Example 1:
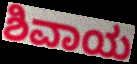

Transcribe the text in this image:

ಶಿವಾಯ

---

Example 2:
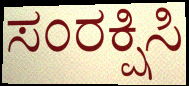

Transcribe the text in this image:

ಸಂರಕ್ಷಿಸಿ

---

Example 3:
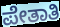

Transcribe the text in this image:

ಪೇತಾತಿ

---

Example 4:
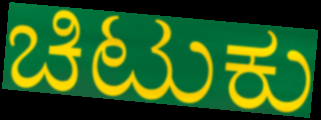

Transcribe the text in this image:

ಚಿಟುಕು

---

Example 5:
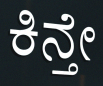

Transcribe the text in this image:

ಕಿನ್ತೇ